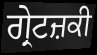
ਗ੍ਰੇਟਜ਼ਕੀ